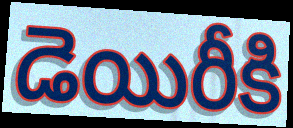
డెయిరీకి